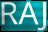
RAJ